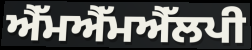
ਐੱਮਐੱਮਐੱਲਪੀ